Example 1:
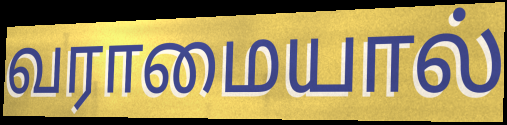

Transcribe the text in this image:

வராமையால்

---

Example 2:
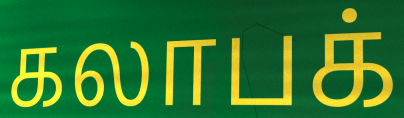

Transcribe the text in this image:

கலாபக்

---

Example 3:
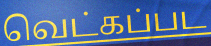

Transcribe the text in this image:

வெட்கப்பட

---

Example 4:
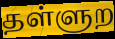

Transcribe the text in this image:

தள்ளுற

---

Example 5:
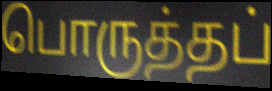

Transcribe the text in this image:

பொருத்தப்